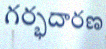
గర్భదారణ